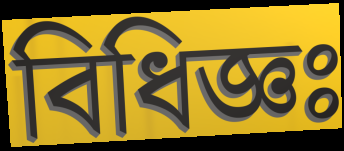
বিধিজ্ঞঃ